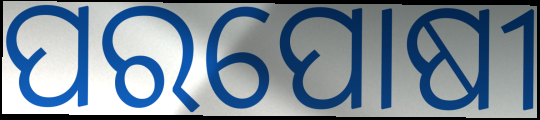
ପରପୋଷୀ